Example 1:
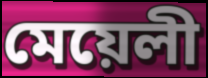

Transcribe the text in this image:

মেয়েলী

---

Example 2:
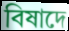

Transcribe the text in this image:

বিষাদে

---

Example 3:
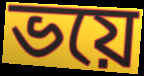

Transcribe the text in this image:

ভয়ে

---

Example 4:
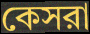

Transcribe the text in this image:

কেসরা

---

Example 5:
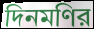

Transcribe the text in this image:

দিনমণির